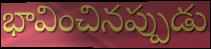
భావించినప్పుడు